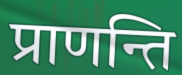
प्राणन्ति